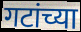
गटांच्या